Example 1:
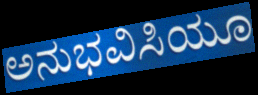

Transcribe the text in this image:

ಅನುಭವಿಸಿಯೂ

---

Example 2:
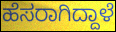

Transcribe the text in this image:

ಹೆಸರಾಗಿದ್ದಾಳೆ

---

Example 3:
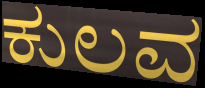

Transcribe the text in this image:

ಕುಲವ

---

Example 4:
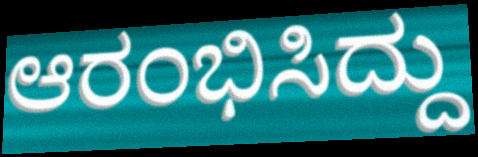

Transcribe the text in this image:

ಆರಂಭಿಸಿದ್ದು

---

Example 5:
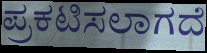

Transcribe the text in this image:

ಪ್ರಕಟಿಸಲಾಗದೆ